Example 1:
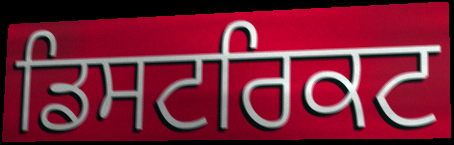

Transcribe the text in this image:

ਡਿਸਟਰਿਕਟ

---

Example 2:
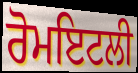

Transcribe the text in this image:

ਰੋਮਇਟਲੀ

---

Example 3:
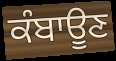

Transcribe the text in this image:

ਕੰਬਾਊਣ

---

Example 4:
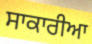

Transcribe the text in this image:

ਸਾਕਾਰੀਆ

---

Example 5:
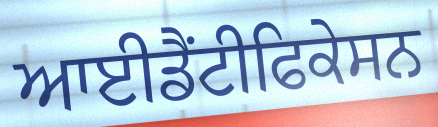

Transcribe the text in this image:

ਆਈਡੈਂਟੀਫਿਕੇਸਨ